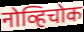
नोव्हिचोक